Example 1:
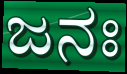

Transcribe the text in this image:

ಜನಃ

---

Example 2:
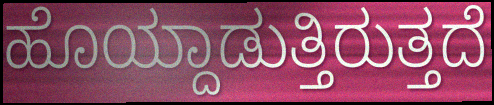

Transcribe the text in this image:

ಹೊಯ್ದಾಡುತ್ತಿರುತ್ತದೆ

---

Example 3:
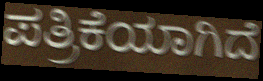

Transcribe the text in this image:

ಪತ್ರಿಕೆಯಾಗಿದೆ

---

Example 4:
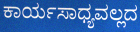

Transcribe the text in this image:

ಕಾರ್ಯಸಾಧ್ಯವಲ್ಲದ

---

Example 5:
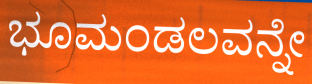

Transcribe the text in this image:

ಭೂಮಂಡಲವನ್ನೇ